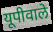
यूपीवाले